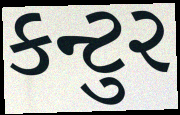
કન્ટુર